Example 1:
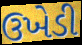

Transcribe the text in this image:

ઉખેડી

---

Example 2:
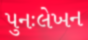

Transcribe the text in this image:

પુનઃલેખન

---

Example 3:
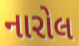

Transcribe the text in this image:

નારોલ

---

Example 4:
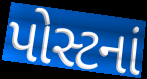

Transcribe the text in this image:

પોસ્ટનાં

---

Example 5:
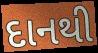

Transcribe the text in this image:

દાનથી